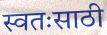
स्वतःसाठी